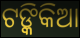
ଟଙ୍କିକିଆ